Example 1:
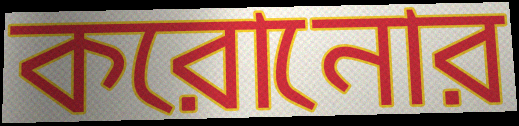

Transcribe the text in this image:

করোনোর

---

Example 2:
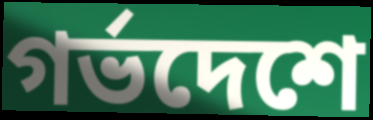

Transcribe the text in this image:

গর্ভদেশে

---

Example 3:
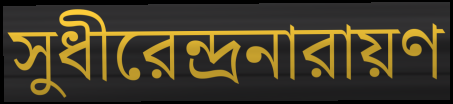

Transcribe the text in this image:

সুধীরেন্দ্রনারায়ণ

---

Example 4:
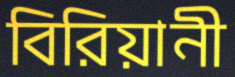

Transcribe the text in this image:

বিরিয়ানী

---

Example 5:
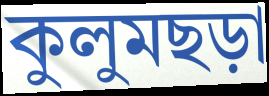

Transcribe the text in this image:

কুলুমছড়া